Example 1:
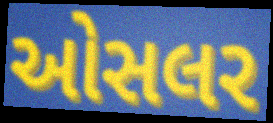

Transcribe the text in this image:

ઓસલર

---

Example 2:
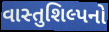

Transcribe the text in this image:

વાસ્તુશિલ્પનો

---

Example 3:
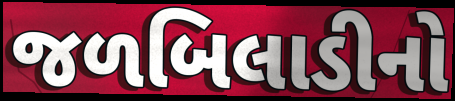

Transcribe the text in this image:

જળબિલાડીનો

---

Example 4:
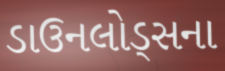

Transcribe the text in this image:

ડાઉનલોડ્સના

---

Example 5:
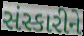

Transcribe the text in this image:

સંસ્કારીને